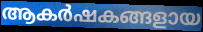
ആകർഷകങ്ങളായ